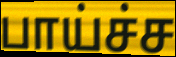
பாய்ச்ச